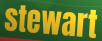
stewart